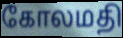
கோலமதி